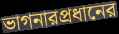
ভাগনারপ্রধানের